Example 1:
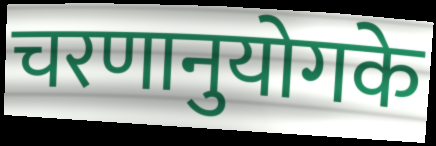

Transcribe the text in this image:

चरणानुयोगके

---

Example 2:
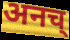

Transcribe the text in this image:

अनच्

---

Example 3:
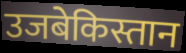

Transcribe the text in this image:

उजबेकिस्तान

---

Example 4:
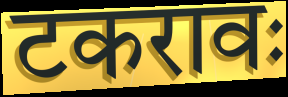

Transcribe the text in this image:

टकरावः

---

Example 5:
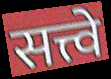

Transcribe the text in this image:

सत्त्वे